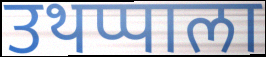
उथप्पाला